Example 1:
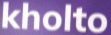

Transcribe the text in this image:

kholto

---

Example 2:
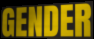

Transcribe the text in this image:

GENDER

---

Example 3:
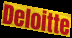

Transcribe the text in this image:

Deloitte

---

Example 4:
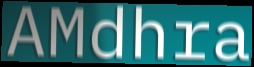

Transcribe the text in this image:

AMdhra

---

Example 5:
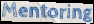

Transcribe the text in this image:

Mentoring